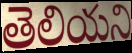
తెలియని